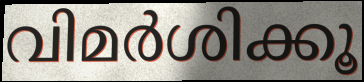
വിമർശിക്കൂ